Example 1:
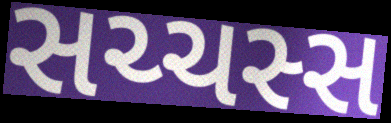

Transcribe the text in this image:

સચ્ચસ્સ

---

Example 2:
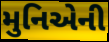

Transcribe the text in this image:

મુનિએની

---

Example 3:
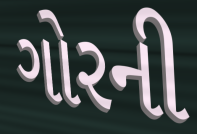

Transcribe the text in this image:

ગોરની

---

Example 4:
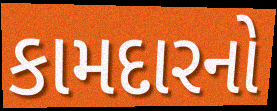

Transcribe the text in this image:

કામદારનો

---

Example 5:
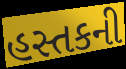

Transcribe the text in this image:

હસ્તકની